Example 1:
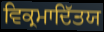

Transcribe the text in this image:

ਵਿਕ੍ਰਮਾਦਿੱਤਯ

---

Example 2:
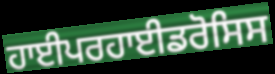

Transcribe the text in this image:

ਹਾਈਪਰਹਾਈਡਰੋਸਿਸ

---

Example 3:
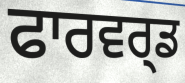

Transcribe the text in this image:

ਫਾਰਵਰ੍ਡ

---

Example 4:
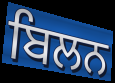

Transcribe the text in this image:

ਬਿਲਨ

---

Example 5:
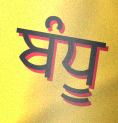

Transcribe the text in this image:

ਬੰਧੂ